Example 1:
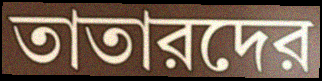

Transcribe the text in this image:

তাতারদের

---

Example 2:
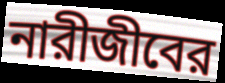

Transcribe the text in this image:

নারীজীবের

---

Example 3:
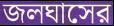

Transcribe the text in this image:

জলঘাসের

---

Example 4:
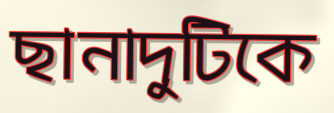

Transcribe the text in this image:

ছানাদুটিকে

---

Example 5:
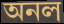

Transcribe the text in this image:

অনল